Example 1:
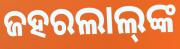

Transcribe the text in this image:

ଜହରଲାଲ୍‌ଙ୍କ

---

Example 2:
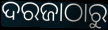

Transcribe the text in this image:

ଦରଜାଠାରୁ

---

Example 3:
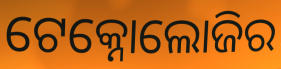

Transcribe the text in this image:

ଟେକ୍ନୋଲୋଜିର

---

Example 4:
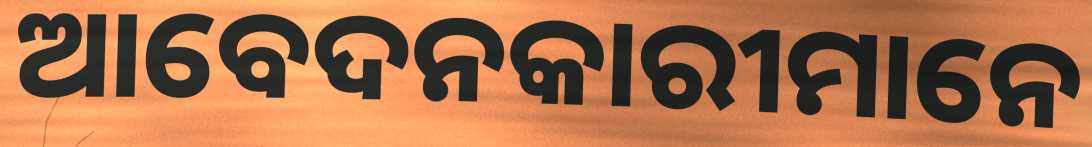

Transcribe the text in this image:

ଆବେଦନକାରୀମାନେ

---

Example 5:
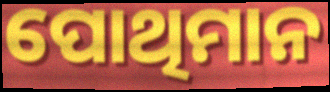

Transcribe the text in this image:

ପୋଥିମାନ